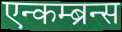
एन्कम्ब्रन्स